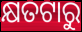
କ୍ଷତଟାରୁ